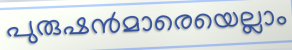
പുരുഷൻമാരെയെല്ലാം